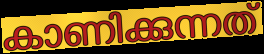
കാണിക്കുന്നത്